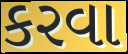
કરવા